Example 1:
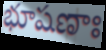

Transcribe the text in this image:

భూషణాః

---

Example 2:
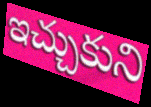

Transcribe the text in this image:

ఇచ్చుకుని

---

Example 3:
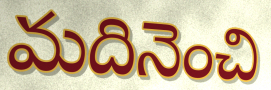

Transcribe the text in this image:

మదినెంచి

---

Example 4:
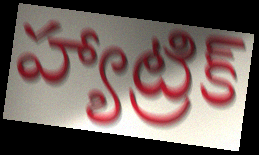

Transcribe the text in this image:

హ్యాట్రిక్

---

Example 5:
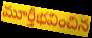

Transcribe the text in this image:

మూర్తీభవించిన